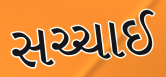
સચ્ચાઈ